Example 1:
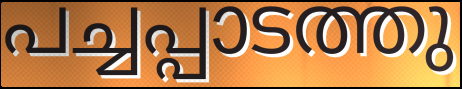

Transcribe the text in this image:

പച്ചപ്പാടത്തു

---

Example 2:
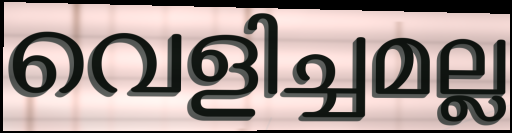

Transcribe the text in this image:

വെളിച്ചമല്ല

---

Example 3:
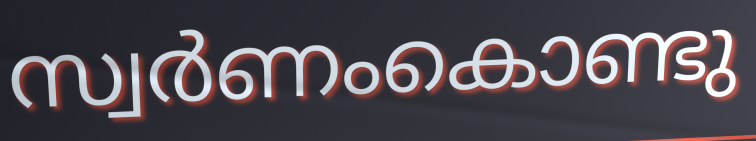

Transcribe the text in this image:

സ്വർണംകൊണ്ടു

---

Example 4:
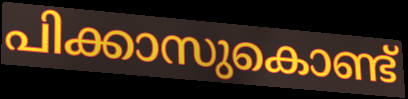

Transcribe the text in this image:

പിക്കാസുകൊണ്ട്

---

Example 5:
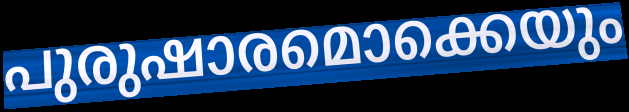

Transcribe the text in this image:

പുരുഷാരമൊക്കെയും